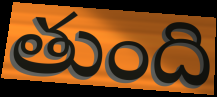
తుంది